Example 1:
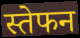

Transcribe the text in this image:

स्तेफन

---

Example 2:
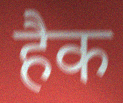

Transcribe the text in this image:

हैक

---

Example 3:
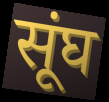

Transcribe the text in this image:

सूंघ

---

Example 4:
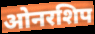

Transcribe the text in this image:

ओनरशिप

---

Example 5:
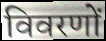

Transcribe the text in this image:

विवरणों